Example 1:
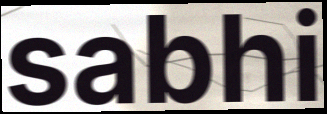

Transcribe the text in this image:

sabhi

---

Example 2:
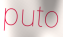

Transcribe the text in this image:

puto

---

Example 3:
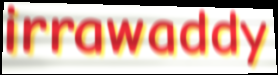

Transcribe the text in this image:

irrawaddy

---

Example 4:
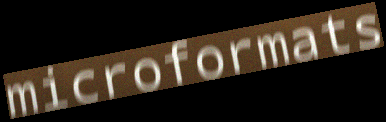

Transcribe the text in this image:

microformats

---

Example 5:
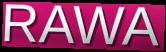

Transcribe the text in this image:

RAWA